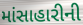
માંસાહારીની